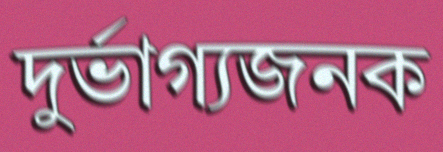
দুর্ভাগ্যজনক